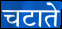
चटाते